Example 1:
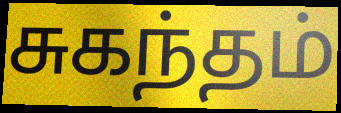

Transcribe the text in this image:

சுகந்தம்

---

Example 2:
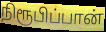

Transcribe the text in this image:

நிரூபிப்பான்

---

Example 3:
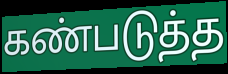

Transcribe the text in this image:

கண்படுத்த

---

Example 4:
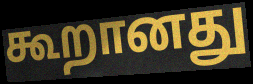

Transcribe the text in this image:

கூறானது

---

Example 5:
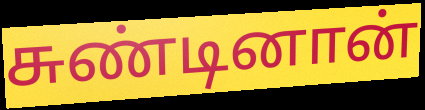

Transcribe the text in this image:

சுண்டினான்